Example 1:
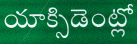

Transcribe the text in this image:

యాక్సిడెంట్లో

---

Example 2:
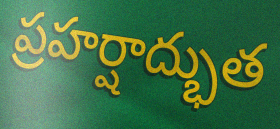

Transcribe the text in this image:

ప్రహర్షాద్భుత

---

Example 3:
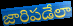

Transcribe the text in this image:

జారిపడేలా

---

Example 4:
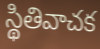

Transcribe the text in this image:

స్థితివాచక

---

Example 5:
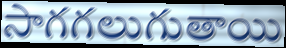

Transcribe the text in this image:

సాగగలుగుతాయి